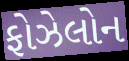
ફોઝેલોન